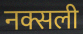
नक्सली